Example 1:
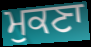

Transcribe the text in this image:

ਮੁਕਣਾ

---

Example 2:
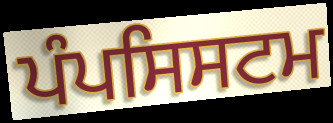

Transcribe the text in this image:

ਪੰਪਸਿਸਟਮ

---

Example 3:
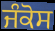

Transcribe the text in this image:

ਜੰਕੋਸ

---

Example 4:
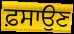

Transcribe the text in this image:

ਫ਼ਸਾਉਣ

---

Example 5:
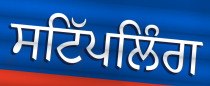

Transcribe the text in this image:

ਸਟਿੱਪਲਿੰਗ